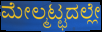
ಮೇಲ್ಮಟ್ಟದಲ್ಲೇ